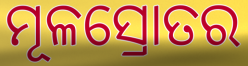
ମୂଳସ୍ରୋତର